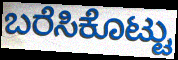
ಬರೆಸಿಕೊಟ್ಟು